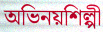
অভিনয়শিল্পী